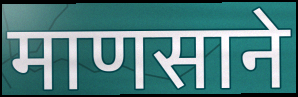
माणसाने